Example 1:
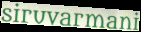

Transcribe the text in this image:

siruvarmani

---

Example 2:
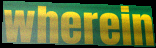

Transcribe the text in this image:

wherein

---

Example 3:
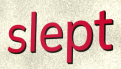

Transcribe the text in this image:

slept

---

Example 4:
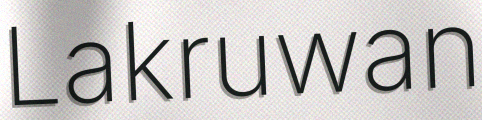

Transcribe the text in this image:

Lakruwan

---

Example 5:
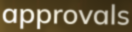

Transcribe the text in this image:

approvals